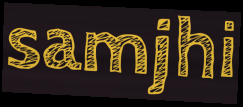
samjhi